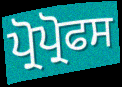
ਪ੍ਰੋਪ੍ਰੋਫਸ